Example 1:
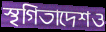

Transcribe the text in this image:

স্থগিতাদেশও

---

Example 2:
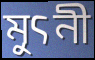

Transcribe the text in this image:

মুৎনী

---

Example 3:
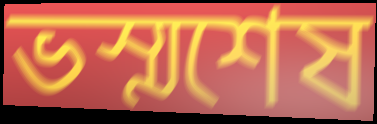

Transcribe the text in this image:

ভস্মশেষ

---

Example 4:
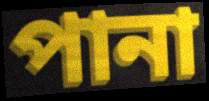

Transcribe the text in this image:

পানা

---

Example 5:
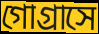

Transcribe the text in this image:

গোগ্রাসে